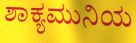
ಶಾಕ್ಯಮುನಿಯ